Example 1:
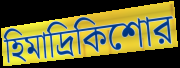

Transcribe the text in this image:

হিমাদ্রিকিশোর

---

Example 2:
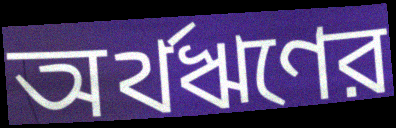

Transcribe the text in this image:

অর্থঋণের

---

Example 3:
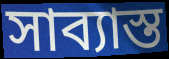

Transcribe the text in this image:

সাব্যাস্ত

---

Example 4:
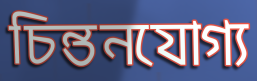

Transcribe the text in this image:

চিন্তনযোগ্য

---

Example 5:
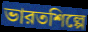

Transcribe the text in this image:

ভারতশিল্পে